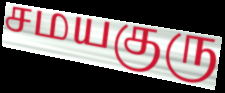
சமயகுரு